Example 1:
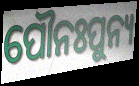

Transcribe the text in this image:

ପୌନଃପୁନ୍ୟ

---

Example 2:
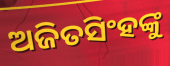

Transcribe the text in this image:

ଅଜିତସିଂହଙ୍କୁ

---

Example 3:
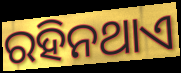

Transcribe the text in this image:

ରହିନଥାଏ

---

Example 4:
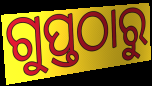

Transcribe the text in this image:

ଗୁପ୍ତଠାରୁ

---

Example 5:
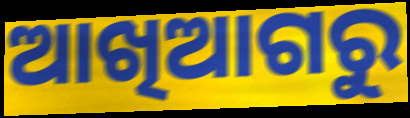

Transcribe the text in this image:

ଆଖିଆଗରୁ